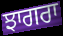
ਝਾਗਰਾ